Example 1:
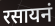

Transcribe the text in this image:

रसायनं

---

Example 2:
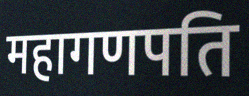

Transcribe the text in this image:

महागणपति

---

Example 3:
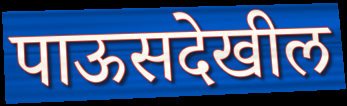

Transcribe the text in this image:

पाऊसदेखील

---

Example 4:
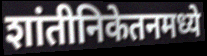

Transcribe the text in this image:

शांतीनिकेतनमध्ये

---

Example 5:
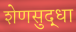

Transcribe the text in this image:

शेणसुद्धा